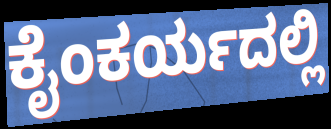
ಕೈಂಕರ್ಯದಲ್ಲಿ